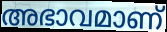
അഭാവമാണ്